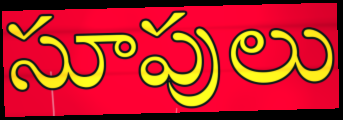
సూపులు